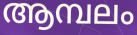
ആമ്പലം